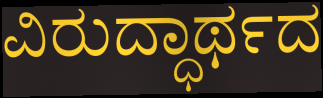
ವಿರುದ್ಧಾರ್ಥದ